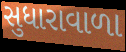
સુધારાવાળા